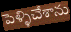
పెళ్ళిచేశాను